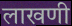
लाखणी